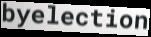
byelection